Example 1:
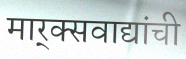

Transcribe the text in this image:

मार्क्सवाद्यांची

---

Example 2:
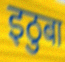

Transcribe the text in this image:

इठुबा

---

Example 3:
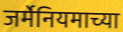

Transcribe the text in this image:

जर्मेनियमाच्या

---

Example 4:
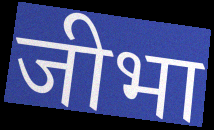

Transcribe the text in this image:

जीभा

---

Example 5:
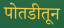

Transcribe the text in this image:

पोतडीतून